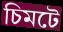
চিমটে